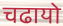
चढायो